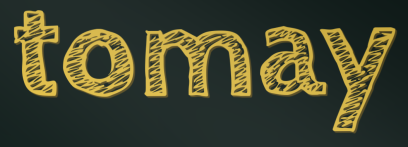
tomay